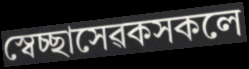
স্বেচ্ছাসেৱকসকলে